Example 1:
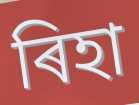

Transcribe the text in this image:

ৰিহা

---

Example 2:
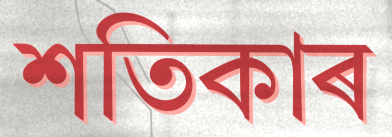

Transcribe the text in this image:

শতিকাৰ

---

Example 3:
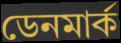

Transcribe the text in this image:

ডেনমাৰ্ক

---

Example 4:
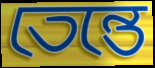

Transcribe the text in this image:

তেন্তে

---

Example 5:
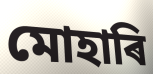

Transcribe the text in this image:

মোহাৰি